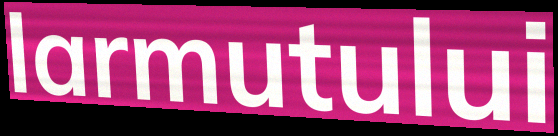
Iarmutului